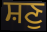
ਸ਼ਣੁ